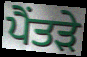
ਪੈਂਤੜੇ